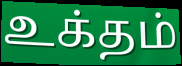
உக்தம்